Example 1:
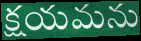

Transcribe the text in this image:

క్షయమను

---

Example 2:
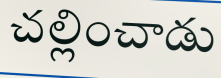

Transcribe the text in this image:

చల్లించాడు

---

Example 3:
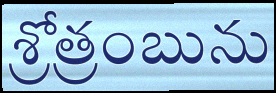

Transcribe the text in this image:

శ్రోత్రంబును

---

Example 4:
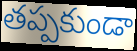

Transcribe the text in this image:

తప్పకుండా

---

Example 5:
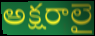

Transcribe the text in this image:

అక్షరాలై